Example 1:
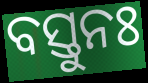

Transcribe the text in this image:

ବସ୍ତୁନଃ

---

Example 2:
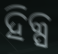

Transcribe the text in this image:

ହିକ୍ସ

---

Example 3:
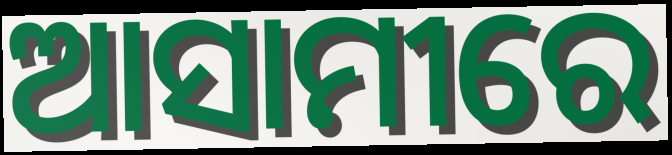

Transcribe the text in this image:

ଆସାମୀରେ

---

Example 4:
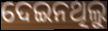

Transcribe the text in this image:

ଦେଇନଥିଲୁ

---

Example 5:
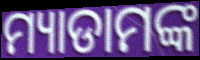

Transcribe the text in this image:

ମ୍ୟାଡାମଙ୍କ